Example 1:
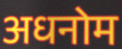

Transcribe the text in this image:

अधनोम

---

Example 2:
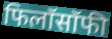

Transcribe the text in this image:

फिलॉसॉफी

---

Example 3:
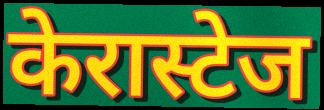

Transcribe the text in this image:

केरास्टेज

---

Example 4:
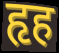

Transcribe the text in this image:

हृह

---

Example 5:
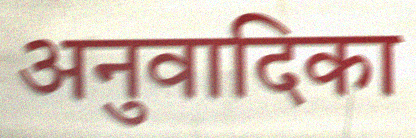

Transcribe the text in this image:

अनुवादिका